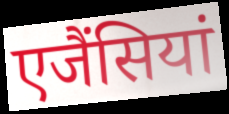
एजैंसियां